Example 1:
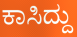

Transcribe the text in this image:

ಕಾಸಿದ್ದು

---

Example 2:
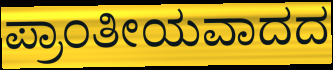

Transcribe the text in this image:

ಪ್ರಾಂತೀಯವಾದದ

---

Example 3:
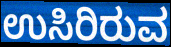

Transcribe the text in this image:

ಉಸಿರಿರುವ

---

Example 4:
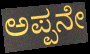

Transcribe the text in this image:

ಅಪ್ಪನೇ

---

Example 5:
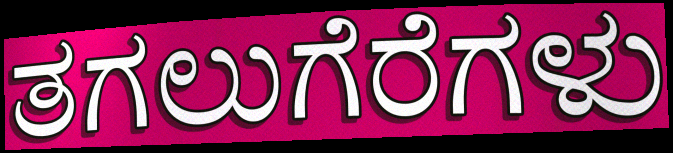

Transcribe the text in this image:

ತಗಲುಗೆರೆಗಳು